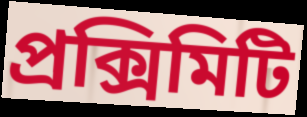
প্রক্সিমিটি